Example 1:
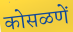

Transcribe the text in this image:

कोसळणें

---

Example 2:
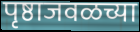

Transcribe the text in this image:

पृष्ठाजवळच्या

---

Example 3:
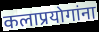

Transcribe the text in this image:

कलाप्रयोगांना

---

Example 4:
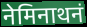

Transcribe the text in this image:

नेमिनाथनं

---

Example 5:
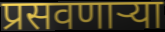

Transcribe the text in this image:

प्रसवणाऱ्या